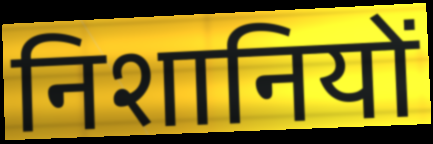
निशानियों